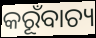
କରୂଁବାଚ୍ୟ